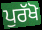
ਪੁਰੱਖੋ